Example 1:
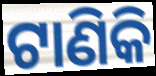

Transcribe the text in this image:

ଟାଣିକି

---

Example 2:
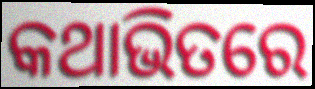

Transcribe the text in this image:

କଥାଭିତରେ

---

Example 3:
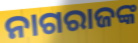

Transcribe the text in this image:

ନାଗରାଜଙ୍କ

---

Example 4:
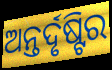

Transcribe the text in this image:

ଅନ୍ତର୍ଦୃଷ୍ଟିର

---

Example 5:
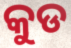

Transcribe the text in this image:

କୁଡ